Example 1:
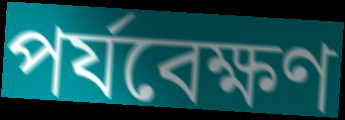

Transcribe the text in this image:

পৰ্যবেক্ষণ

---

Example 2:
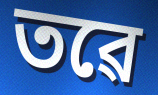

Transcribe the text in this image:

তৱে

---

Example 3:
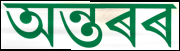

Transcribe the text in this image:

অন্তৰৰ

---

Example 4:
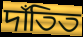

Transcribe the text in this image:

দাঁতিত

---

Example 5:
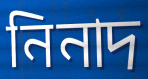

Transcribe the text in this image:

নিনাদ